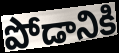
పోడానికి